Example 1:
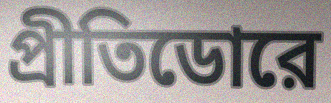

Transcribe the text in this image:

প্রীতিডোরে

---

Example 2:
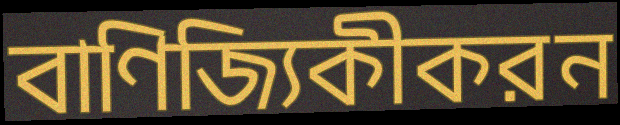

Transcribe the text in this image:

বাণিজ্যিকীকরন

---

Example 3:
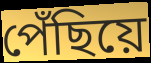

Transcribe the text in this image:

পেঁছিয়ে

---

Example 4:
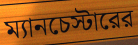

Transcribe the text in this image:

ম্যানচেস্টারের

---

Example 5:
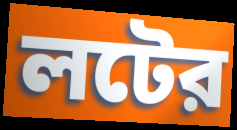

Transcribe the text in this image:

লটের